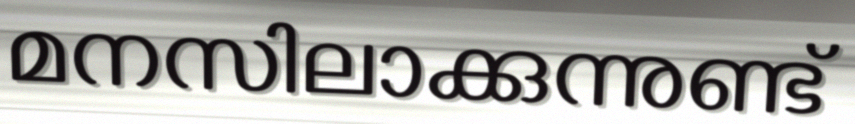
മനസിലാക്കുന്നുണ്ട്